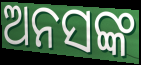
ଅନସଙ୍କ